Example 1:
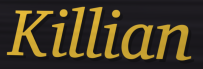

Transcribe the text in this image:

Killian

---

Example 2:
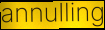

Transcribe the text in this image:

annulling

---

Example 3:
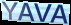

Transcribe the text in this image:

YAVA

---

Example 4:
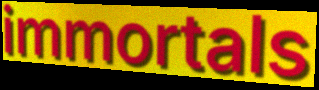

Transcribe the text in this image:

immortals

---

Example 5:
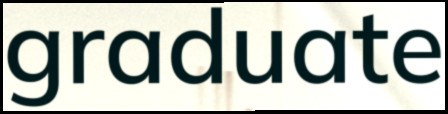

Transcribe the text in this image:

graduate